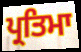
ਪ੍ਰਤਿਮਾ